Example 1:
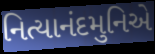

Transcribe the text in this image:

નિત્યાનંદમુનિએ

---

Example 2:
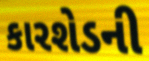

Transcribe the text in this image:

કારશેડની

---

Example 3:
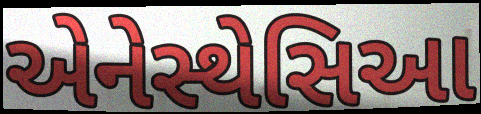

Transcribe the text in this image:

એનેસ્થેસિઆ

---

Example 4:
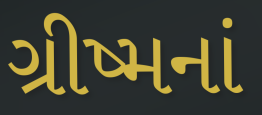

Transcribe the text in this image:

ગ્રીષ્મનાં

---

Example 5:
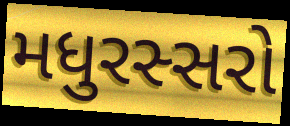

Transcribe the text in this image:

મધુરસ્સરો